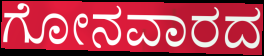
ಗೋನವಾರದ